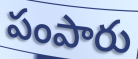
పంపారు